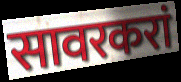
सावरकरां